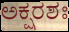
ಅಕ್ಷರಶಃ